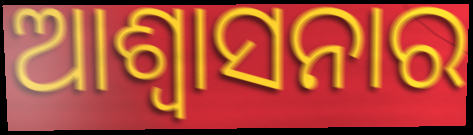
ଆଶ୍ୱାସନାର